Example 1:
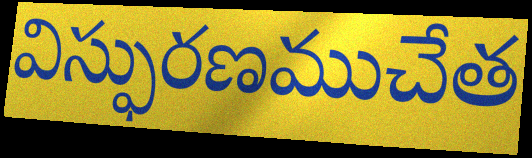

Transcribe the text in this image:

విస్ఫురణముచేత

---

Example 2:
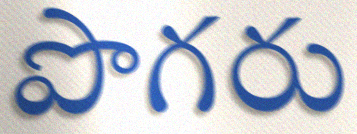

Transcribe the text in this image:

పొగరు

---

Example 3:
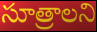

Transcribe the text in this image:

సూత్రాలని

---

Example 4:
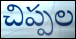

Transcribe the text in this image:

చిప్పల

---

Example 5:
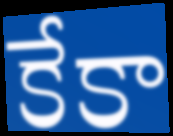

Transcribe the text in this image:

కేకా